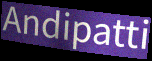
Andipatti